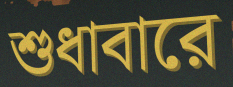
শুধাবারে